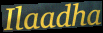
Ilaadha